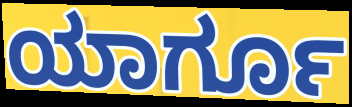
ಯಾರ್ಗೂ